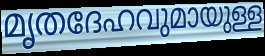
മൃതദേഹവുമായുള്ള